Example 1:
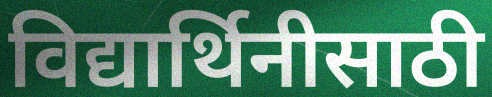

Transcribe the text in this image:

विद्यार्थिनीसाठी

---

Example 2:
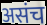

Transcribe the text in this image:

असंच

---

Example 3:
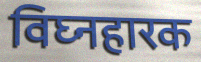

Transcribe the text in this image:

विघ्नहारक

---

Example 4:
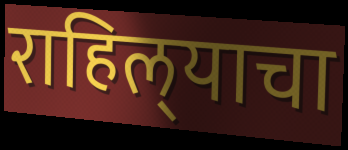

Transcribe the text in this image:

राहिल्याचा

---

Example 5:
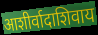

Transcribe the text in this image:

आशीर्वादाशिवाय